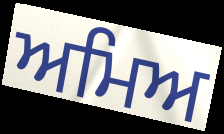
ਅਮਿਅ